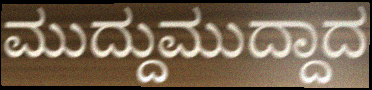
ಮುದ್ದುಮುದ್ದಾದ